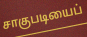
சாகுபடியைப்